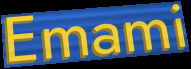
Emami